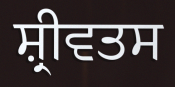
ਸ਼੍ਰੀਵਤਸ